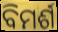
ବିମର୍ଶ